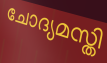
ചോദ്യമസ്തി